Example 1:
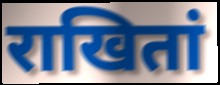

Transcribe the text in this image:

राखितां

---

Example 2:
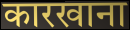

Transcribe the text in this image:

कारखाना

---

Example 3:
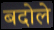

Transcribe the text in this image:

बदोले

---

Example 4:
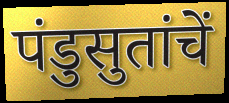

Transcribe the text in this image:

पंडुसुतांचें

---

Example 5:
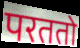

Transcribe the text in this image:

परततो